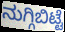
ನುಗ್ಗಿಬಿಟ್ಟೆ